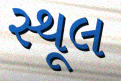
સ્થૂલ